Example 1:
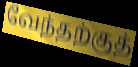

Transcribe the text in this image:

வேந்தற்குத்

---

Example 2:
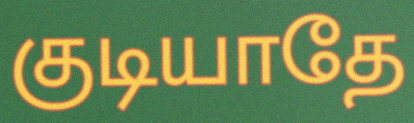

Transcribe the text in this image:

குடியாதே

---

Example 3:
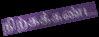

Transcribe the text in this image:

நிற்கக்கண்ட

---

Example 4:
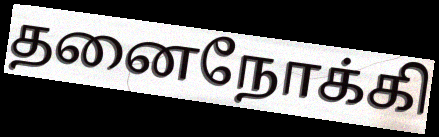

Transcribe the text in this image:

தனைநோக்கி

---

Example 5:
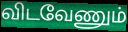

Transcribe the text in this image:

விடவேணும்